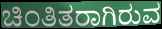
ಚಿಂತಿತರಾಗಿರುವ